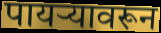
पायऱ्यावरून